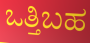
ಒತ್ತಿಬಹ